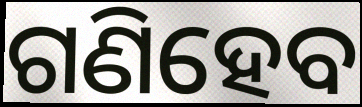
ଗଣିହେବ